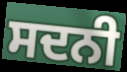
ਸਦਨੀ